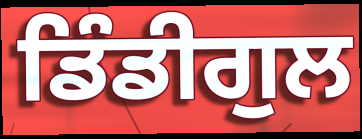
ਡਿੰਡੀਗੁਲ